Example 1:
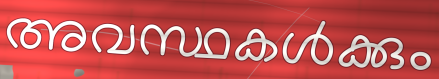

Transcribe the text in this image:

അവസ്ഥകൾക്കും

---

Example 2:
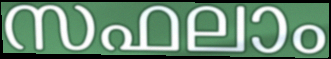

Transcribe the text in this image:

സഫലാം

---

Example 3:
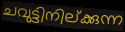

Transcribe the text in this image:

ചവുട്ടിനില്ക്കുന്ന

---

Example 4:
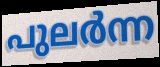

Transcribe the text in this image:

പുലർന്ന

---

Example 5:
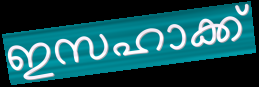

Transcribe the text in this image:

ഇസഹാക്ക്